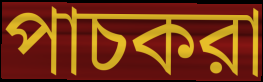
পাচকরা